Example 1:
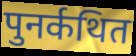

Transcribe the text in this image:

पुनर्कथित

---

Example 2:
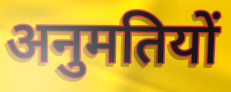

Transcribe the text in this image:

अनुमतियों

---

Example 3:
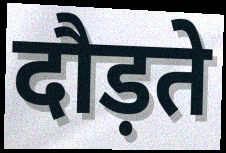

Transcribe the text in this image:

दौड़ते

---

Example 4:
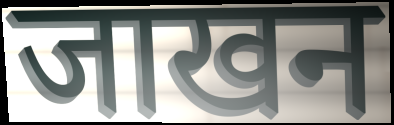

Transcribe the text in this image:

जाखन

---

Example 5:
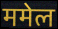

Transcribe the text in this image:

ममेल